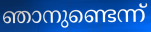
ഞാനുണ്ടെന്ന്